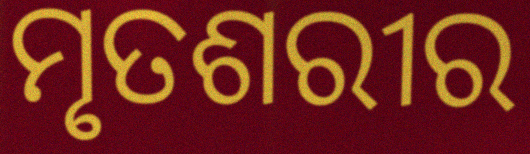
ମୃତଶରୀର